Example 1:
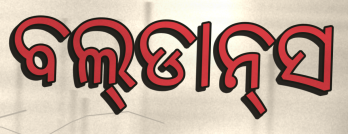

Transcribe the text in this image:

ବଲ୍‌ଡାନ୍‌ସ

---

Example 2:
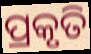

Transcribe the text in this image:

ପ୍ରକୃତି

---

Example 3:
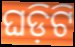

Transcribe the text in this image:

ଘଡ଼ିଟି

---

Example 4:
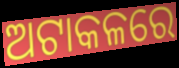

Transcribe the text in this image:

ଅଟାକଳରେ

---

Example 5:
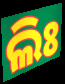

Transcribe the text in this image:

ଲିଃ